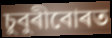
চুবুৰীবোৰত